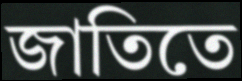
জাতিতে